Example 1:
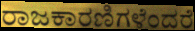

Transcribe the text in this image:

ರಾಜಕಾರಣಿಗಳೆಂದರೆ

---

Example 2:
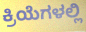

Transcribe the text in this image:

ಕ್ರಿಯೆಗಳಲ್ಲಿ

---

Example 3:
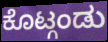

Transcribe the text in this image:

ಕೊಟ್ಗಂಡು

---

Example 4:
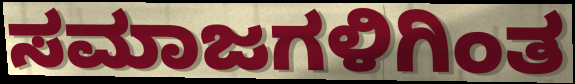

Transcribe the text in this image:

ಸಮಾಜಗಳಿಗಿಂತ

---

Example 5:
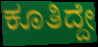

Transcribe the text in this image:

ಕೂತಿದ್ದೇ